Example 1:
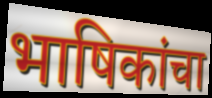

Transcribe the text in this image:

भाषिकांचा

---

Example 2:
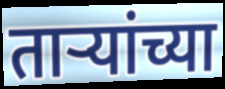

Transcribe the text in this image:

तार्‍यांच्या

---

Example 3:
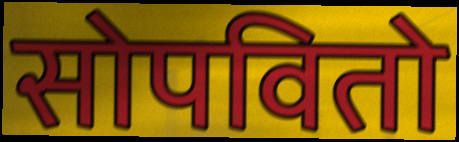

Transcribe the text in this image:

सोपवितो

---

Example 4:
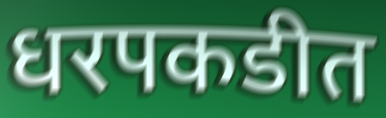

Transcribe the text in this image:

धरपकडीत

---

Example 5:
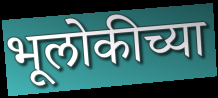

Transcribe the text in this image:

भूलोकीच्या